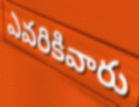
ఎవరికివారు